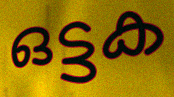
ഒട്ടക